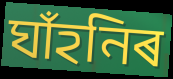
ঘাঁহনিৰ